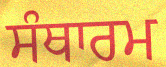
ਸੰਥਾਰਮ